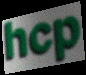
hcp